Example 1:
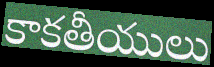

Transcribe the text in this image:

కాకతీయులు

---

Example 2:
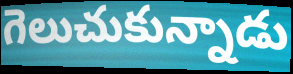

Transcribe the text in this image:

గెలుచుకున్నాడు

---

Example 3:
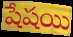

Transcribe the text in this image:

షేషయి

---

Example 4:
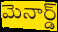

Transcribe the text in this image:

మెనార్డ్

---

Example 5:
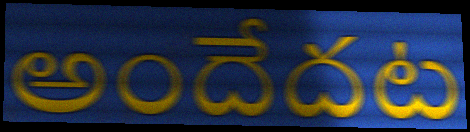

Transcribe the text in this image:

అందేదట